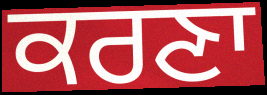
ਕਰਣਾ